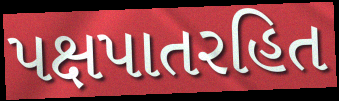
પક્ષપાતરહિત